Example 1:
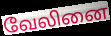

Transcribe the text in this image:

வேலினை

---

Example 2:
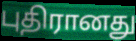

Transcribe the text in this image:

புதிரானது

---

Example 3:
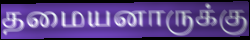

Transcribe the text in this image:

தமையனாருக்கு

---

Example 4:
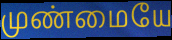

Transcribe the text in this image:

முண்மையே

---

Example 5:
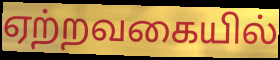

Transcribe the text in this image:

ஏற்றவகையில்